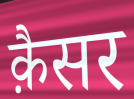
क़ैसर